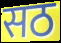
सठ